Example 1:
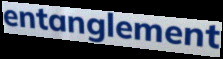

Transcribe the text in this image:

entanglement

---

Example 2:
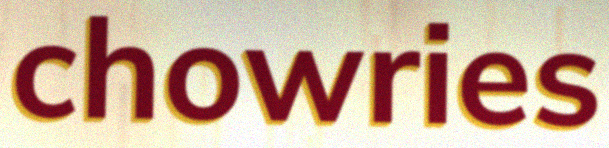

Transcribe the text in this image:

chowries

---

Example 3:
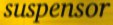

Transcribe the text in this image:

suspensor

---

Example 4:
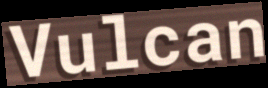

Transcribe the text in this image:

Vulcan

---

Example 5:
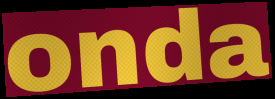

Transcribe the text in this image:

onda